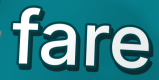
fare